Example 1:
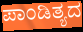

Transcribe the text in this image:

ಪಾಂಡಿತ್ಯದ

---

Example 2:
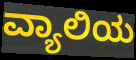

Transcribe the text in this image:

ವ್ಯಾಲಿಯ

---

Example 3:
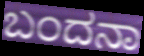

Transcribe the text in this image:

ಬಂದನಾ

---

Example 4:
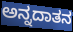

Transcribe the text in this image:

ಅನ್ನದಾತನ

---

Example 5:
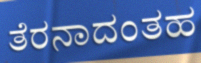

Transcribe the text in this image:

ತೆರನಾದಂತಹ